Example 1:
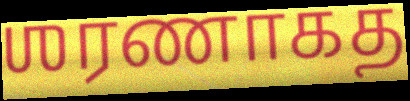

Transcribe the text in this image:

ஶரணாகத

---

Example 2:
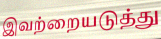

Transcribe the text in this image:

இவற்றையடுத்து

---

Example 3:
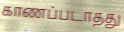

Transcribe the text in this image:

காணப்படாதது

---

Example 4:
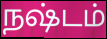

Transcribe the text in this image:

நஷ்டம்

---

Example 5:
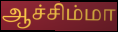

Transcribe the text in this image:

ஆச்சிம்மா